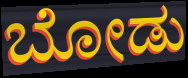
ಬೋಡು